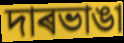
দাৰভাঙা